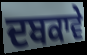
ਦਬਕਾਵੇ